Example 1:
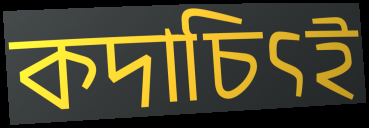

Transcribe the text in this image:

কদাচিৎই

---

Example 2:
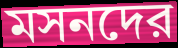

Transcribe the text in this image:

মসনদের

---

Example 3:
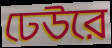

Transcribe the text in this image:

ঢেউরে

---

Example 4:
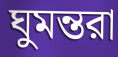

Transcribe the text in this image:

ঘুমন্তরা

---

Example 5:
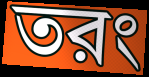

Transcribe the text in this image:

তরং